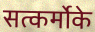
सत्कर्मोके